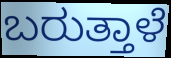
ಬರುತ್ತಾಳೆ